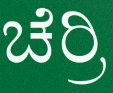
ಚೆರ‍್ರಿ